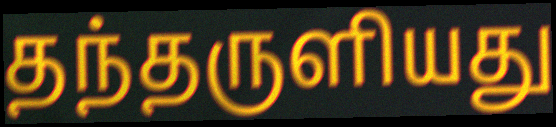
தந்தருளியது